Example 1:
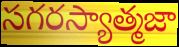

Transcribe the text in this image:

సగరస్యాత్మజా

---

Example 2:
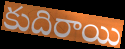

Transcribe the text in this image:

కుదిరాయి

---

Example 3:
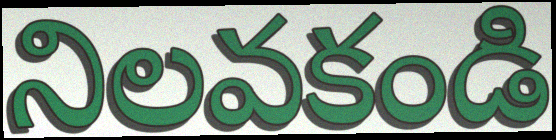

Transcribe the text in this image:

నిలవకండి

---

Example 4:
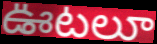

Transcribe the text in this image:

ఊటలూ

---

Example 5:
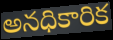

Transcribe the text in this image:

అనధికారిక